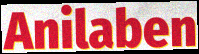
Anilaben